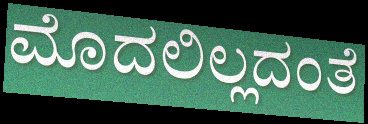
ಮೊದಲಿಲ್ಲದಂತೆ